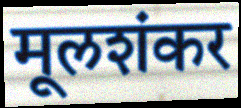
मूलशंकर